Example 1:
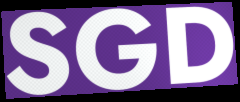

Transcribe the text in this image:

SGD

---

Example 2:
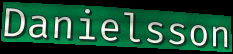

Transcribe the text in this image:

Danielsson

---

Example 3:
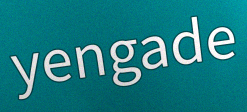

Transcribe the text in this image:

yengade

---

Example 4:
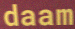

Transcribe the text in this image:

daam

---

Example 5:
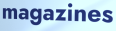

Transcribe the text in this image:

magazines